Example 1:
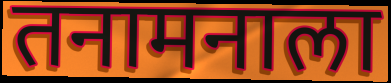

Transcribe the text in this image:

तनामनाला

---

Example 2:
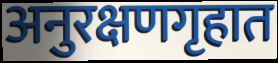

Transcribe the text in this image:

अनुरक्षणगृहात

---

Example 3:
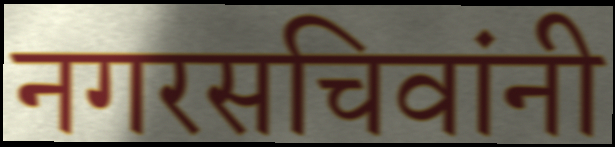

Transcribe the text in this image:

नगरसचिवांनी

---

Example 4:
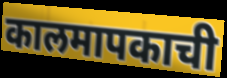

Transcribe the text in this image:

कालमापकाची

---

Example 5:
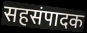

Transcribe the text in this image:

सहसंपादक